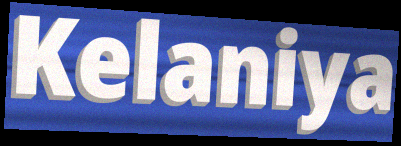
Kelaniya